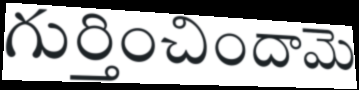
గుర్తించిందామె